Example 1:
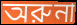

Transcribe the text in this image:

অরুনা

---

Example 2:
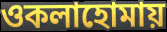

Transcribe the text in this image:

ওকলাহোমায়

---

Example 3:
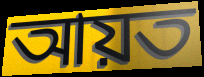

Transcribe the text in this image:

আয়ত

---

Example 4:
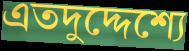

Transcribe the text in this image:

এতদুদ্দেশ্যে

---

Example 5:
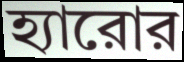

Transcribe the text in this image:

হ্যারোর